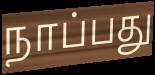
நாப்பது